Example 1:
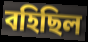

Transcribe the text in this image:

বহিছিল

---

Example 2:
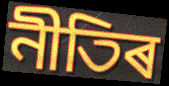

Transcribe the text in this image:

নীতিৰ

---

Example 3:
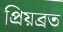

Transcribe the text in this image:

প্ৰিয়ব্ৰত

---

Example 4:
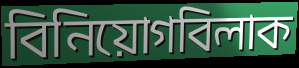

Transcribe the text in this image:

বিনিয়োগবিলাক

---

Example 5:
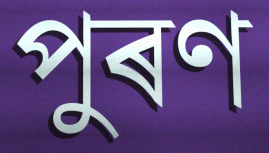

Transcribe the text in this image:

পুৰণ